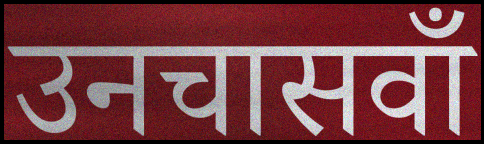
उनचासवाँ